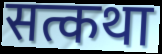
सत्कथा